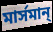
মার্সমান্